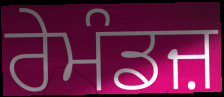
ਰੇਮੰਡਜ਼